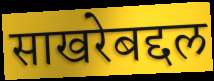
साखरेबद्दल